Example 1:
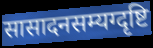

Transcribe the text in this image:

सासादनसम्यग्दृष्टि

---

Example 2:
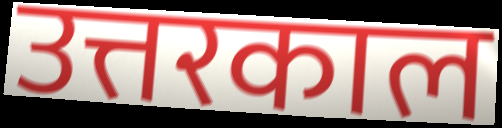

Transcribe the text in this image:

उत्तरकाल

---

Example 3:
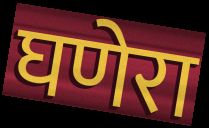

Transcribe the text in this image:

घणेरा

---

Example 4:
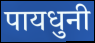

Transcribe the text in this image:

पायधुनी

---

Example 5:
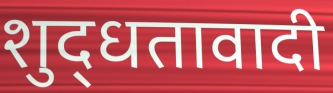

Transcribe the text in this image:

शुद्धतावादी